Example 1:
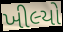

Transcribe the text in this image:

ખીલ્યો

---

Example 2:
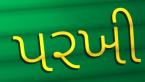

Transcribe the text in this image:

પરખી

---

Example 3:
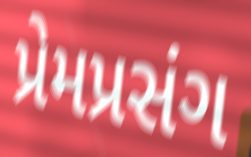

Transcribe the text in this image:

પ્રેમપ્રસંગ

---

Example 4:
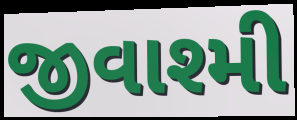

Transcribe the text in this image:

જીવાશ્મી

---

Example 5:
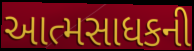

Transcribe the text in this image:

આત્મસાધકની